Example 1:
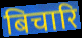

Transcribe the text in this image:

बिचारि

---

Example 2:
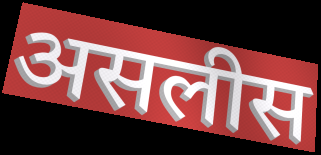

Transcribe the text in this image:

असलीस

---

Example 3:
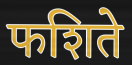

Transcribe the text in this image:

फशिते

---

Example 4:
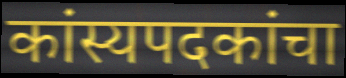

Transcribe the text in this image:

कांस्यपदकांचा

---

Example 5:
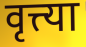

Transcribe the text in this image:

वृत्त्या